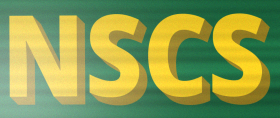
NSCS